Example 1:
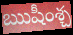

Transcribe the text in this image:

ఋషీంశ్చ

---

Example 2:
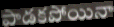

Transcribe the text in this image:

పాడకపోయినా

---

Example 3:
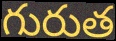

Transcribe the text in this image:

గురుత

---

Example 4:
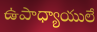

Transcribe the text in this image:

ఉపాధ్యాయులే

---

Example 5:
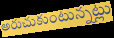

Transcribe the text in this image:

అరుచుకుంటున్నట్లు